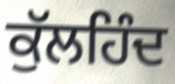
ਕੁੱਲਹਿੰਦ